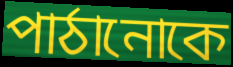
পাঠানোকে